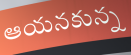
ఆయనకున్న